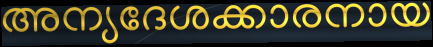
അന്യദേശക്കാരനായ